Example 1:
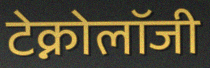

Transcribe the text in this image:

टेक्नोलॉजी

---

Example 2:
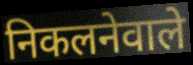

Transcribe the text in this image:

निकलनेवाले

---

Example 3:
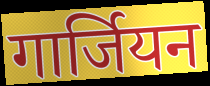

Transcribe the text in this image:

गार्जियन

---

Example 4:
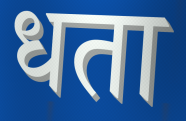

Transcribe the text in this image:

धता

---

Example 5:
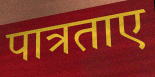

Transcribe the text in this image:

पात्रताए